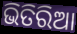
ଭିତିରିଆ